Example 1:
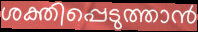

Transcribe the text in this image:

ശക്തിപ്പെടുത്താൻ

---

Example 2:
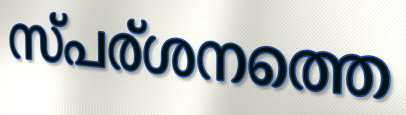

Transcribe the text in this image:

സ്പര്ശനത്തെ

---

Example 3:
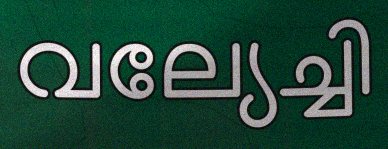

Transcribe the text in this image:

വല്യേച്ചി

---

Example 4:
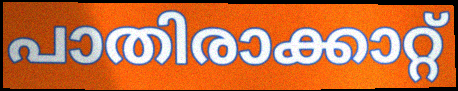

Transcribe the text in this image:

പാതിരാക്കാറ്റ്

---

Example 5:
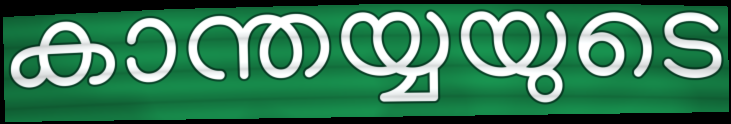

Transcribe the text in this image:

കാന്തയ്യയുടെ